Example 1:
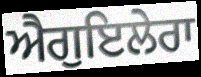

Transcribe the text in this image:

ਐਗੁਇਲੇਰਾ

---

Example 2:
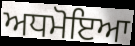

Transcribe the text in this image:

ਅਧਮੋਇਆ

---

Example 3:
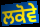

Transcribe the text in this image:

ਲਕੋਵੇ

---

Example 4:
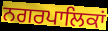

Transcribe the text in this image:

ਨਗਰਪਾਲਿਕਾਂ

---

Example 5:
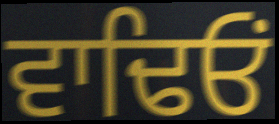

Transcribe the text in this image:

ਵਾਢਿਓਂ